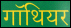
गॉथियर